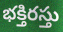
భక్తిరస్తు